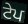
ਟੇਪ